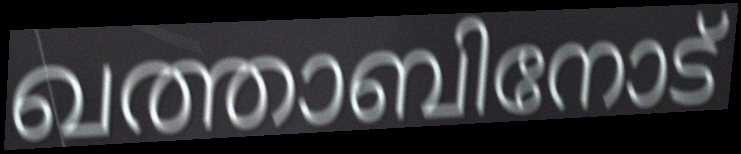
ഖത്താബിനോട്